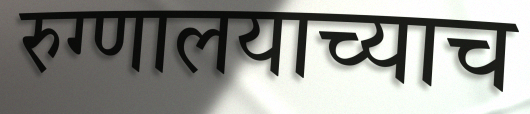
रुग्णालयाच्याच